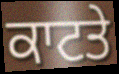
ਕਾਟਤੇ